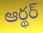
ఆర్థర్